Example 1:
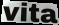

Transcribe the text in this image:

vita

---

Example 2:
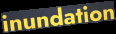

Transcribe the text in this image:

inundation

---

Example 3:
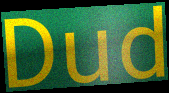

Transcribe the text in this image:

Dud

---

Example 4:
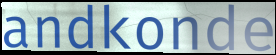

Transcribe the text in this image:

andkonde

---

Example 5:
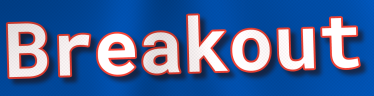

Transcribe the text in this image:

Breakout